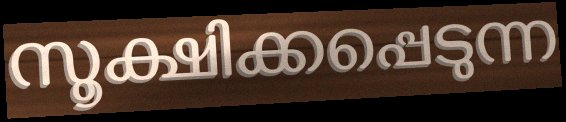
സൂക്ഷിക്കപ്പെടുന്ന